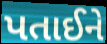
પતાઈને